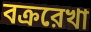
বক্ররেখা